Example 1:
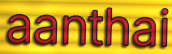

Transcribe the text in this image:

aanthai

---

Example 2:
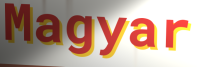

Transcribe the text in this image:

Magyar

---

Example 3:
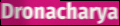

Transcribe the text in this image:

Dronacharya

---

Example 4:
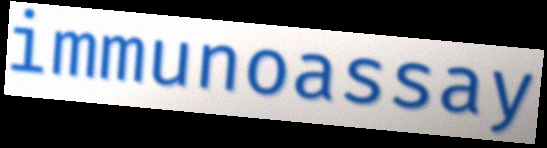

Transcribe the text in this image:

immunoassay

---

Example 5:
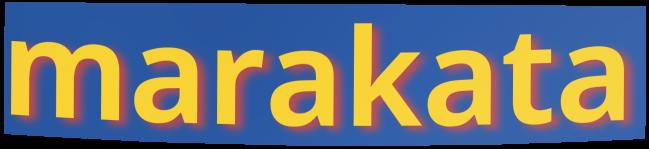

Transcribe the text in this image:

marakata